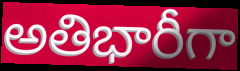
అతిభారీగా